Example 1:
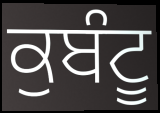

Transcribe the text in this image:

ਕੁਬੰਟੂ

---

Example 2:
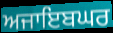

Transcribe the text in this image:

ਅਜਾਇਬਘਰ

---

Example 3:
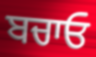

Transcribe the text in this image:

ਬਚਾਓ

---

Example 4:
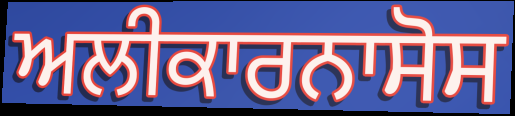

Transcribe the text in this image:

ਅਲੀਕਾਰਨਾਸੋਸ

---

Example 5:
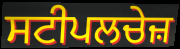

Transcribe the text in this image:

ਸਟੀਪਲਚੇਜ਼